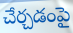
చేర్చడంపై